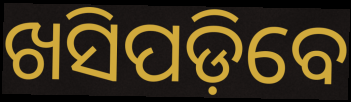
ଖସିପଡ଼ିବେ